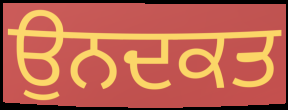
ਉਨਦਕਤ